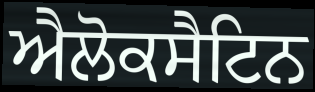
ਐਲੋਕਸੈਟਿਨ